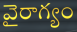
వైరాగ్యం